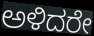
ಅಳಿದರೇ